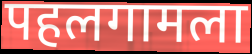
पहलगामला